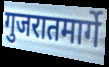
गुजरातमार्गे